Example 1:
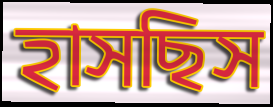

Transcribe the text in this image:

হাসছিস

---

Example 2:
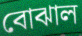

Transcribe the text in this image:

বোঝাল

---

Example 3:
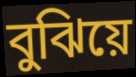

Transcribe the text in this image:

বুঝিয়ে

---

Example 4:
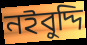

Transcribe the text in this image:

নইবুদ্দি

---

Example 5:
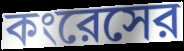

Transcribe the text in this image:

কংরেসের